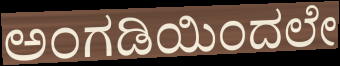
ಅಂಗಡಿಯಿಂದಲೇ